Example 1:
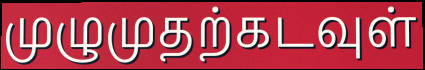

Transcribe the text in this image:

முழுமுதற்கடவுள்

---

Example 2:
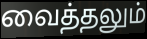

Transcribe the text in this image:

வைத்தலும்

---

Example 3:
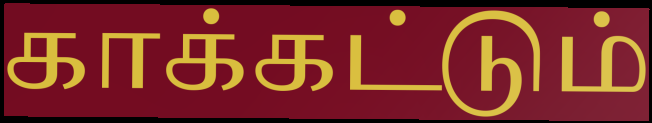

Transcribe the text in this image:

காக்கட்டும்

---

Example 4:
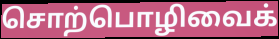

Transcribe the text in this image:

சொற்பொழிவைக்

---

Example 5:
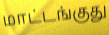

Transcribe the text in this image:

மாட்டங்குது